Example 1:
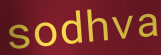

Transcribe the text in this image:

sodhva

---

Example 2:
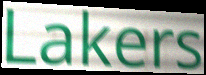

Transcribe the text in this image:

Lakers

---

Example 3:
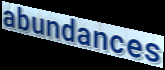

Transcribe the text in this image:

abundances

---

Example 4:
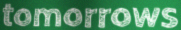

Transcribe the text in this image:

tomorrows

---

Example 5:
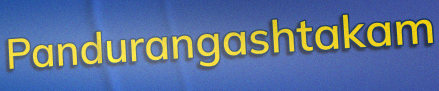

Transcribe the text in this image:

Pandurangashtakam